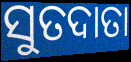
ସୁତଦାତା